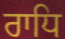
ਰਾਧਿ